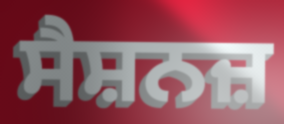
ਸੈਸ਼ਨਜ਼